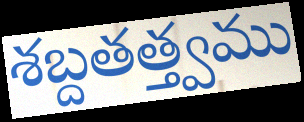
శబ్దతత్త్వము